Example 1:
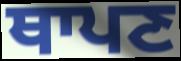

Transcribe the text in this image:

ਥਾਪਣ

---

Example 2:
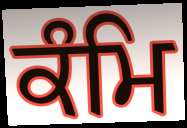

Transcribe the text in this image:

ਕੰਮਿ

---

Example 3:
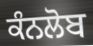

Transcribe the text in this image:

ਕੰਨਲੋਬ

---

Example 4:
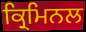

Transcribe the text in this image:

ਕ੍ਰਿਮਿਨਲ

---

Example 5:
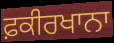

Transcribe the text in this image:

ਫ਼ਕੀਰਖਾਨਾ